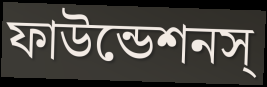
ফাউন্ডেশনস্